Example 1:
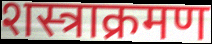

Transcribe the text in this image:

शस्त्राक्रमण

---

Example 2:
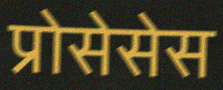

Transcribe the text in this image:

प्रोसेसेस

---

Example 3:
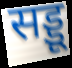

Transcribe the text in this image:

सड्डू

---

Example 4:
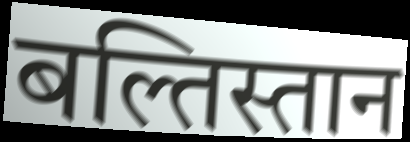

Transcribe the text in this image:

बल्तिस्तान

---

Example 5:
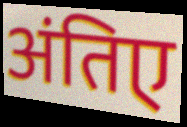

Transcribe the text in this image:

अंतिए